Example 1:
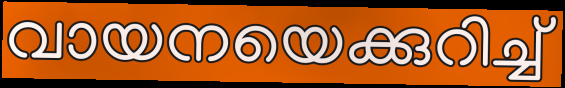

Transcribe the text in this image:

വായനയെക്കുറിച്ച്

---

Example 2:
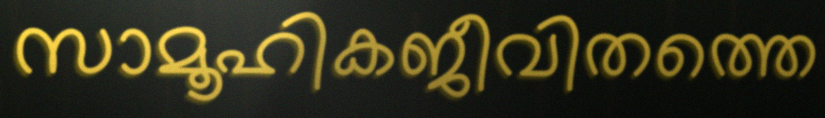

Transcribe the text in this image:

സാമൂഹികജീവിതത്തെ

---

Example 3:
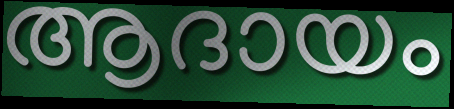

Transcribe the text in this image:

ആദായം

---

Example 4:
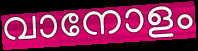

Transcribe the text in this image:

വാനോളം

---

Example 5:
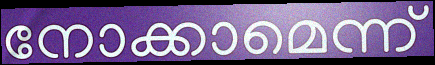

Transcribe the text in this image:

നോക്കാമെന്ന്